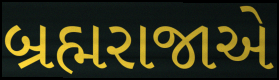
બ્રહ્મરાજાએ